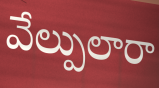
వేల్పులారా